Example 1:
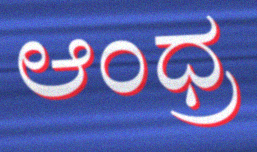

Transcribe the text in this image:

ಆಂಧ್ರ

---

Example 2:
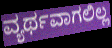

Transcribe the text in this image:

ವ್ಯರ್ಥವಾಗಲಿಲ್ಲ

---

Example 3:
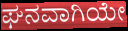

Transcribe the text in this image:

ಘನವಾಗಿಯೇ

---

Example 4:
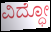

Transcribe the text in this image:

ವಿದ್ಧೋ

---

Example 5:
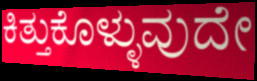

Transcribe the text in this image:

ಕಿತ್ತುಕೊಳ್ಳುವುದೇ